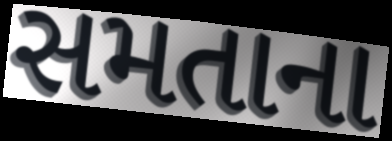
સમતાના